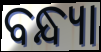
ବନ୍ଧ୍ୟା